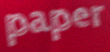
paper